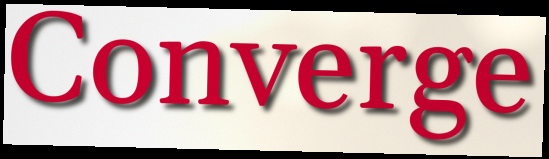
Converge